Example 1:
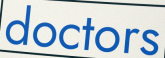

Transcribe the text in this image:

doctors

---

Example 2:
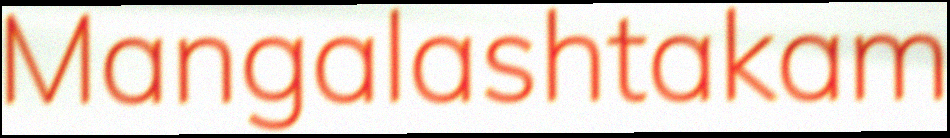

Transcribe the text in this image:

Mangalashtakam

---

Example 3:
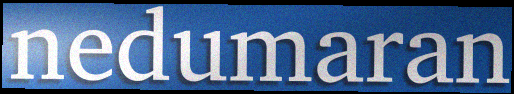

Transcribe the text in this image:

nedumaran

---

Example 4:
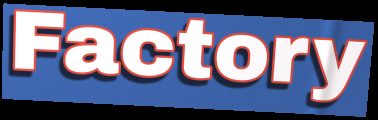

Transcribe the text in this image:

Factory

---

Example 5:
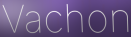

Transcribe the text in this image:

Vachon